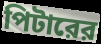
পিটারের